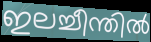
ഇലച്ചീന്തിൽ